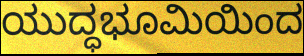
ಯುದ್ಧಭೂಮಿಯಿಂದ